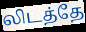
லிடத்தே